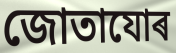
জোতাযোৰ